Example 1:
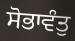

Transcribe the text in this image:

ਸੋਭਾਵੰਤੁ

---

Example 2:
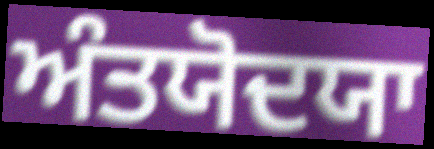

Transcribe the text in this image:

ਅੰਤਯੋਦਯਾ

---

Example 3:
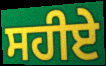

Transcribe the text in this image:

ਸਹੀਏ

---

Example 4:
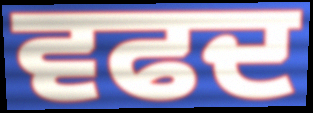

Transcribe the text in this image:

ਵਫਦ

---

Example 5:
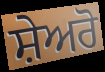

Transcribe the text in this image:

ਸ਼ੇਅਰੋ